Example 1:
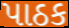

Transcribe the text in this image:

પાઠક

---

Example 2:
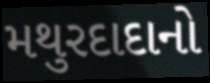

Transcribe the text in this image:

મથુરદાદાનો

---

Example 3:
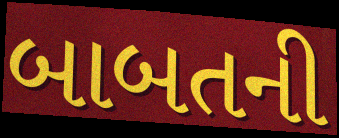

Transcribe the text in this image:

બાબતની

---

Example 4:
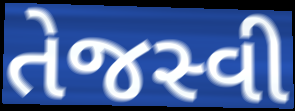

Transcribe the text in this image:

તેજસ્વી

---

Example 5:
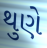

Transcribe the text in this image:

થુણે